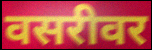
वसरीवर